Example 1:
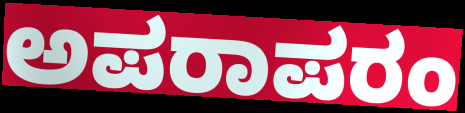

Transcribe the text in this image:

ಅಪರಾಪರಂ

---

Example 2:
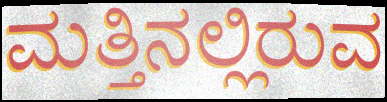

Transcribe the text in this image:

ಮತ್ತಿನಲ್ಲಿರುವ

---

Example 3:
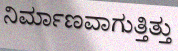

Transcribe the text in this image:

ನಿರ್ಮಾಣವಾಗುತ್ತಿತ್ತು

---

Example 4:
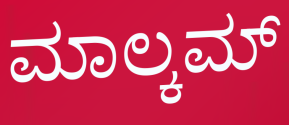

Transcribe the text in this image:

ಮಾಲ್ಕಮ್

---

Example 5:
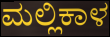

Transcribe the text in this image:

ಮಲ್ಲಿಕಾಳ